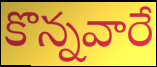
కొన్నవారే